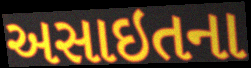
અસાઇતના